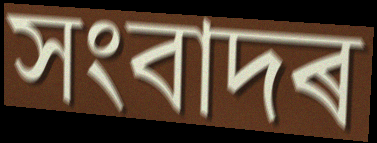
সংবাদৰ